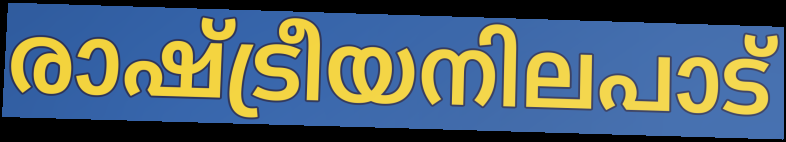
രാഷ്ട്രീയനിലപാട്